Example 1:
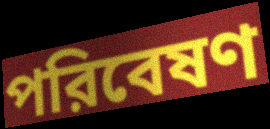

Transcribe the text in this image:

পরিবেষণ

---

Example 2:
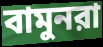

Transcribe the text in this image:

বামুনরা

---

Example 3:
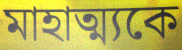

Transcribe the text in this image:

মাহাত্ম্যকে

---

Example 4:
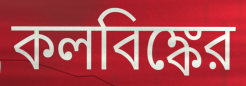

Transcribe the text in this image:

কলবিঙ্কের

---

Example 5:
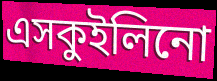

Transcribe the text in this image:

এসকুইলিনো